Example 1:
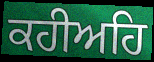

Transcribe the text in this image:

ਕਹੀਅਹਿ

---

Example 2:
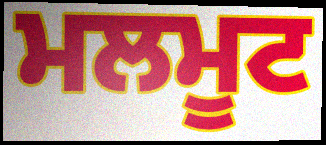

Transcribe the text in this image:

ਮਲਮੂਟ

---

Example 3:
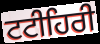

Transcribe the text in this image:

ਟਟੀਹਿਰੀ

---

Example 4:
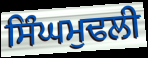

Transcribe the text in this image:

ਸਿੰਘਮੁਢਲੀ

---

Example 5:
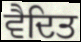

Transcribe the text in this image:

ਵੈਦਿਤ